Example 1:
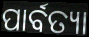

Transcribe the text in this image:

ପାର୍ବତ୍ୟା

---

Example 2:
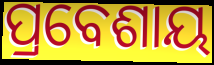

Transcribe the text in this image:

ପ୍ରବେଶାୟ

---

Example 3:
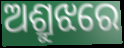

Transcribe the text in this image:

ଅଶ୍ରୁଝରେ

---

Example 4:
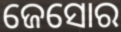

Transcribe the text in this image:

ଜେସୋର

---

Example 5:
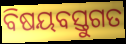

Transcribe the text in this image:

ବିଷୟବସ୍ତୁଗତ